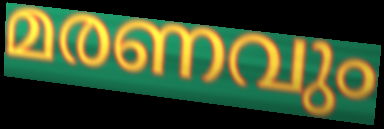
മരണവും